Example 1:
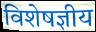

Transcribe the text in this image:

विशेषज्ञीय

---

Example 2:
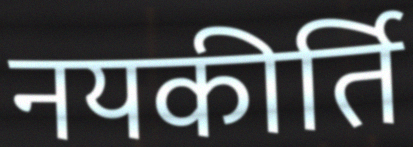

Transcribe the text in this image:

नयकीर्ति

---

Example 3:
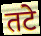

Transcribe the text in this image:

तटे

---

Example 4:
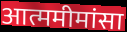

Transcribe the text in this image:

आत्ममीमांसा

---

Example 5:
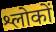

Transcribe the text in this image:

श्लोकों